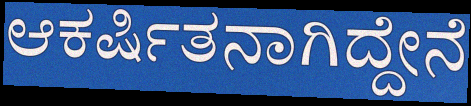
ಆಕರ್ಷಿತನಾಗಿದ್ದೇನೆ